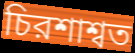
চিরশাশ্বত